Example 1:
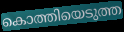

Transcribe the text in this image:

കൊത്തിയെടുത്ത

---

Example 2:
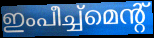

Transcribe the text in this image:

ഇംപീച്ച്മെന്റ്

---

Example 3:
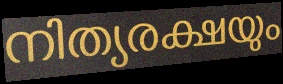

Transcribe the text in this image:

നിത്യരക്ഷയും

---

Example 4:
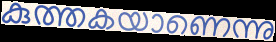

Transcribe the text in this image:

കുത്തകയാണെന്നു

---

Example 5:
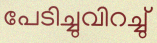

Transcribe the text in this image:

പേടിച്ചുവിറച്ചു്